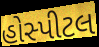
હોસ્પીટલ